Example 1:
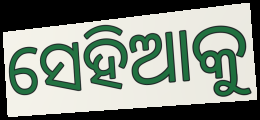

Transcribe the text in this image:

ସେହିଆକୁ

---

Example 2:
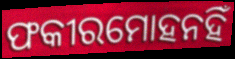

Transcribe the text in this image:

ଫକୀରମୋହନହିଁ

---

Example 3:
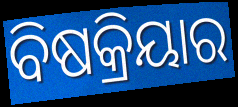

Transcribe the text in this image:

ବିଷକ୍ରିୟାର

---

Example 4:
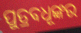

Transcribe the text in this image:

ପୁତ୍ରବଧୂଙ୍କର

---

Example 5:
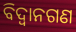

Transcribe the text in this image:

ବିଦ୍ଵାନଗଣ